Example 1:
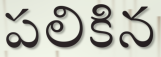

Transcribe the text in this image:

పలికిన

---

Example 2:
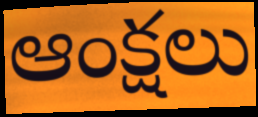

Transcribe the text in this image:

ఆంక్షలు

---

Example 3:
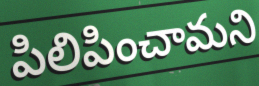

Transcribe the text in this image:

పిలిపించామని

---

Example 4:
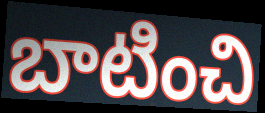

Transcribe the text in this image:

బాటించి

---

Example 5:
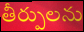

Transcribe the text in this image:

తీర్పులను